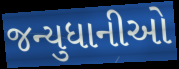
જન્યુધાનીઓ